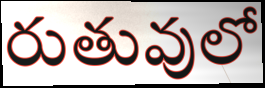
రుతువులో